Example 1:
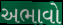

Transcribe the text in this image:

અભાવો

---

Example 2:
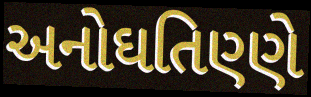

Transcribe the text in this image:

અનોઘતિણ્ણે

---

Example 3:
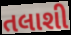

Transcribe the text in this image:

તલાશી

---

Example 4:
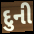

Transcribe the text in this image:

દુની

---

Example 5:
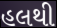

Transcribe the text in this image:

હલથી